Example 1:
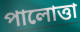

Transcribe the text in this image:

পালোত্তা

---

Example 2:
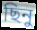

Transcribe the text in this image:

ছিনু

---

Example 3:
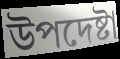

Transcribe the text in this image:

উপদেষ্টা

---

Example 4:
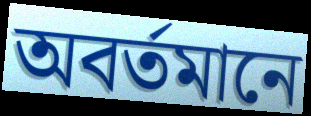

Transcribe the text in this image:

অবর্তমানে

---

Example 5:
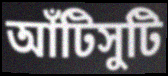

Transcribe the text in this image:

আঁটিসুটি